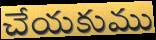
చేయకుము